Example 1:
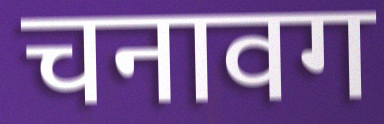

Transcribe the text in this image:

चनावग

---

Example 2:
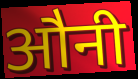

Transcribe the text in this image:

औनी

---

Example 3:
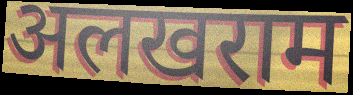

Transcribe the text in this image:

अलखराम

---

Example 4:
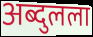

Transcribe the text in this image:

अब्दुलला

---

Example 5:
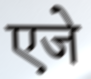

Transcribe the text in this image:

एजे